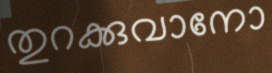
തുറക്കുവാനോ